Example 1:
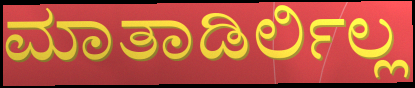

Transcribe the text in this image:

ಮಾತಾಡಿರ್ಲಿಲ್ಲ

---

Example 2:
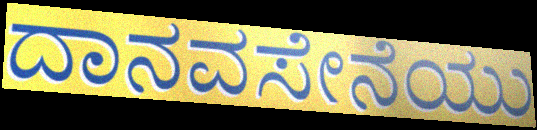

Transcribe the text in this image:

ದಾನವಸೇನೆಯು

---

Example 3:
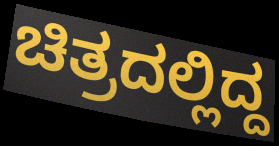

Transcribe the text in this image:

ಚಿತ್ರದಲ್ಲಿದ್ದ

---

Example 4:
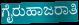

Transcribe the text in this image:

ಗೈರುಹಾಜರಾತಿ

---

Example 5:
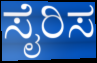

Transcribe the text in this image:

ಸೈರಿಸ